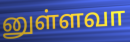
னுள்ளவா